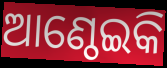
ଆଣ୍ଠେଇକି